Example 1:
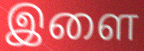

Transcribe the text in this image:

இளை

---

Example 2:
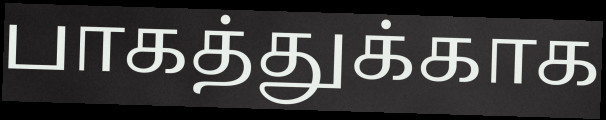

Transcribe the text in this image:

பாகத்துக்காக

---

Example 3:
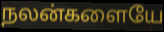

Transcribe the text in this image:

நலன்களையே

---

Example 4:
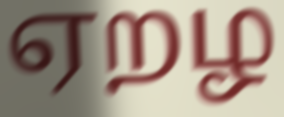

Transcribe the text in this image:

ஏறழ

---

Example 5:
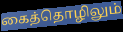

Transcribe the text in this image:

கைத்தொழிலும்